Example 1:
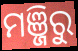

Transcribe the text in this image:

ମଞ୍ଜିରୁ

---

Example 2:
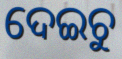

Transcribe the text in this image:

ଦେଇଚୁ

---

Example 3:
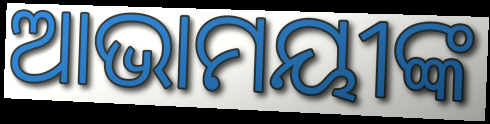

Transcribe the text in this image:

ଆଭାମୟୀଙ୍କ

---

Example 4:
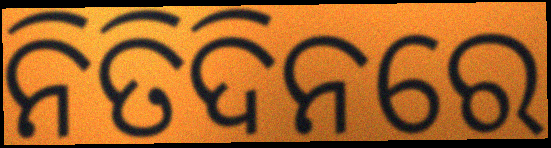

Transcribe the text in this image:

ନିତିଦିନରେ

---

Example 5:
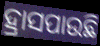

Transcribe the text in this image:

ହ୍ରାସପାଉଛି